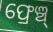
ଫ୍ରେଞ୍ଚ୍